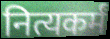
नित्यकर्मं